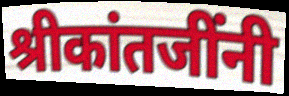
श्रीकांतजींनी